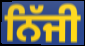
ਨਿੱਜੀ